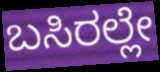
ಬಸಿರಲ್ಲೇ